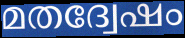
മതദ്വേഷം